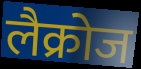
लैक्रोज